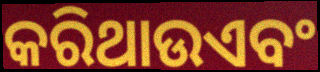
କରିଥାଉଏବଂ